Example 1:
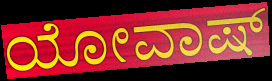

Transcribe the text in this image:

ಯೋವಾಷ್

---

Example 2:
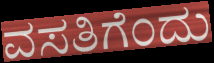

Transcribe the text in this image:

ವಸತಿಗೆಂದು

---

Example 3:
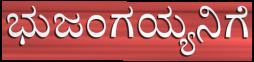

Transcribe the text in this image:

ಭುಜಂಗಯ್ಯನಿಗೆ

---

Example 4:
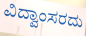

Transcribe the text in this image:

ವಿದ್ವಾಂಸರದು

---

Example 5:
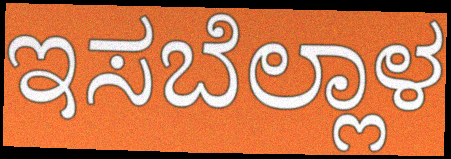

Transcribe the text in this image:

ಇಸಬೆಲ್ಲಾಳ